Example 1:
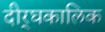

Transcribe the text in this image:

दीर्घकालिक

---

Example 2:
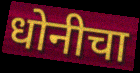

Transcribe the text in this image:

धोनीचा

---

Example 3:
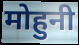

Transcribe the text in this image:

मोहुनी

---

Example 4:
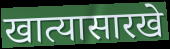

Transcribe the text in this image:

खात्यासारखे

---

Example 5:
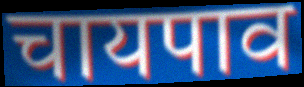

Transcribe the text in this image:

चायपाव